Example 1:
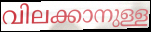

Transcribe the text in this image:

വിലക്കാനുള്ള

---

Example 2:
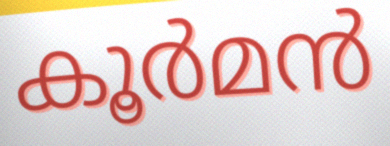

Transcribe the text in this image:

കൂർമൻ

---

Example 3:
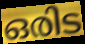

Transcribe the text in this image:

ഒരിട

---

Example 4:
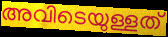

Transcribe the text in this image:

അവിടെയുള്ളത്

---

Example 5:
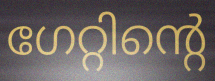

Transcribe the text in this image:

ഗേറ്റിന്റെ